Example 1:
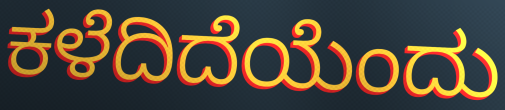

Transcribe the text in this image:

ಕಳೆದಿದೆಯೆಂದು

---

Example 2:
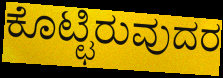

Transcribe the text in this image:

ಕೊಟ್ಟಿರುವುದರ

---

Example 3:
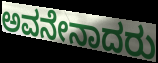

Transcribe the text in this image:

ಅವನೇನಾದರು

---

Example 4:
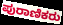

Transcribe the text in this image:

ಪುರಾಣಿಕರು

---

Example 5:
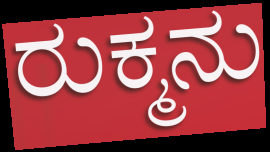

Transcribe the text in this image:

ರುಕ್ಮನು